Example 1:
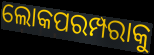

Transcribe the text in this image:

ଲୋକପରମ୍ପରାକୁ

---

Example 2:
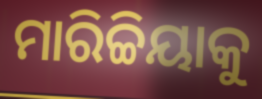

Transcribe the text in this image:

ମାରିଚ୍ଚିୟାକୁ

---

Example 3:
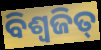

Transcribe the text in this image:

ବିଶ୍ୱଜିତ୍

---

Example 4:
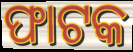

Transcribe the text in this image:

ଫାଟକ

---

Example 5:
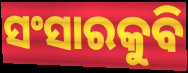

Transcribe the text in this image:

ସଂସାରକୁବି